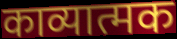
काव्यात्मक